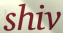
shiv